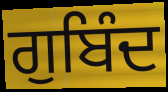
ਗੁਬਿੰਦ